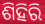
ଶିହିରି